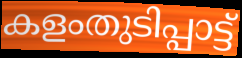
കളംതുടിപ്പാട്ട്